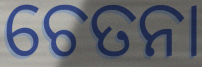
ଚେତନା